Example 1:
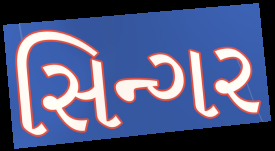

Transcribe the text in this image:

સિન્ગર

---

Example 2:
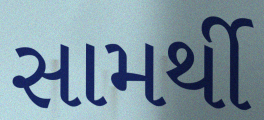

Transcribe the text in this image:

સામર્થી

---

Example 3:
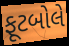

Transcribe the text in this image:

ફૂટબોલે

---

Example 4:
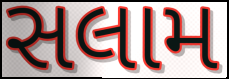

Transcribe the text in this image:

સલામ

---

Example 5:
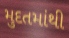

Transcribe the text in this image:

મુદતમાંથી